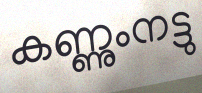
കണ്ണുംനട്ടു